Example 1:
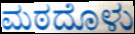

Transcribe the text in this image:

ಮಠದೊಳು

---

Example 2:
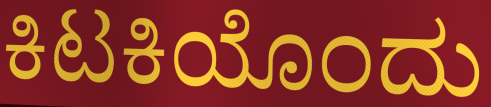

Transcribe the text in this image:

ಕಿಟಕಿಯೊಂದು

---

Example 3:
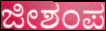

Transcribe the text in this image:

ಜೀಶಂಪ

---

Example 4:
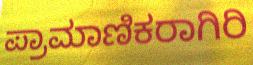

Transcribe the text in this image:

ಪ್ರಾಮಾಣಿಕರಾಗಿರಿ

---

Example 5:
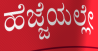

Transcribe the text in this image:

ಹೆಜ್ಜೆಯಲ್ಲೇ